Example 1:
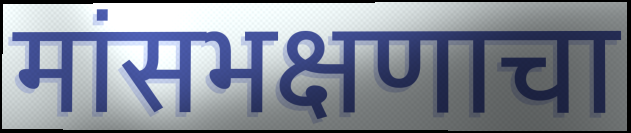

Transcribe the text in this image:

मांसभक्षणाचा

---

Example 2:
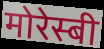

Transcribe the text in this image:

मोरेस्बी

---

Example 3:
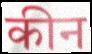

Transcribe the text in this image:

कीन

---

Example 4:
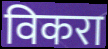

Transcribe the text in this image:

विकरा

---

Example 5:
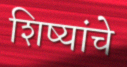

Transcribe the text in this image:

शिष्यांचे